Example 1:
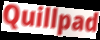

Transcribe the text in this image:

Quillpad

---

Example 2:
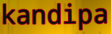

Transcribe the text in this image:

kandipa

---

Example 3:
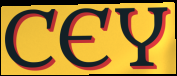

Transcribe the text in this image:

CEY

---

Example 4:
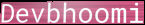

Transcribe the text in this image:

Devbhoomi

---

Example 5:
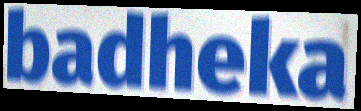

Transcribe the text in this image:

badheka